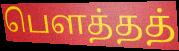
பௌத்தத்